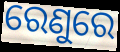
ରେଣୁରେ